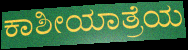
ಕಾಶೀಯಾತ್ರೆಯ